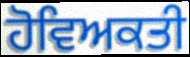
ਹੋਵਿਅਕਤੀ